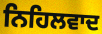
ਨਿਹਿਲਵਾਦ